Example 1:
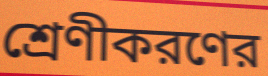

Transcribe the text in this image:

শ্রেণীকরণের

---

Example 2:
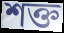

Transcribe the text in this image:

শক্ত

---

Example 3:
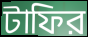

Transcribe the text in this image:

টাফির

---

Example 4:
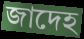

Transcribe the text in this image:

জাদেহ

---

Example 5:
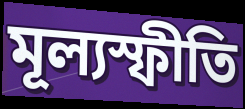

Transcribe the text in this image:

মূল্যস্ফীতি